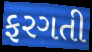
ફરગતી